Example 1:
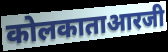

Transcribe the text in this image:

कोलकाताआरजी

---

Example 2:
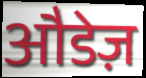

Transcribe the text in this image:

औडेज़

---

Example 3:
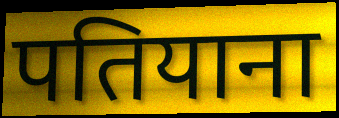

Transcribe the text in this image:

पतियाना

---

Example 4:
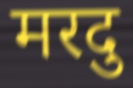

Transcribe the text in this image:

मरदु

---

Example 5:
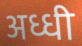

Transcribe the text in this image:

अध्धी